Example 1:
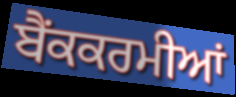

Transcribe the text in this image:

ਬੈਂਕਕਰਮੀਆਂ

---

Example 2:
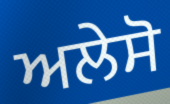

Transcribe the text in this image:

ਅਲੇਸੋ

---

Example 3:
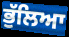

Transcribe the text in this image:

ਭੁੱਲਿਆ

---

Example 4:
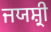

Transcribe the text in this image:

ਜਯਸ਼੍ਰੀ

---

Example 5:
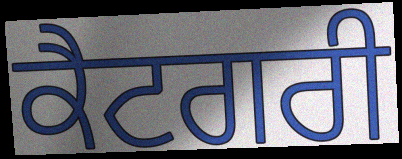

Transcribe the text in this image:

ਕੈਟਗਰੀ